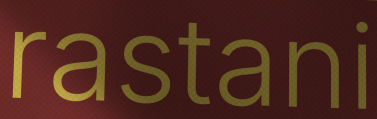
rastani